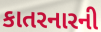
કાતરનારની